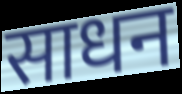
साधन